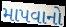
માપવાનો